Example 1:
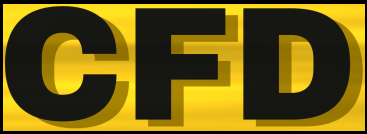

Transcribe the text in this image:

CFD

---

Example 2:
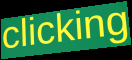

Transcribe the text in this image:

clicking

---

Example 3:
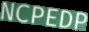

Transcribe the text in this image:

NCPEDP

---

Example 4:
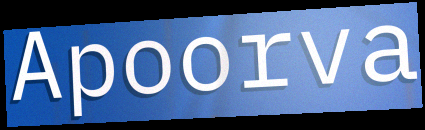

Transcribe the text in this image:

Apoorva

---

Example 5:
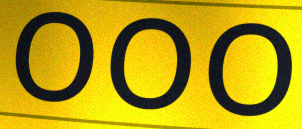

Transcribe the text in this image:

ooo